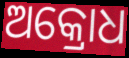
ଅକ୍ରୋଧ